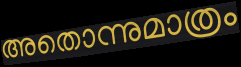
അതൊന്നുമാത്രം